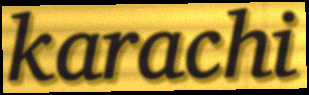
karachi